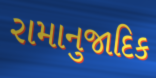
રામાનુજાદિક